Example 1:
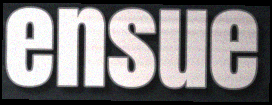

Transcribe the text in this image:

ensue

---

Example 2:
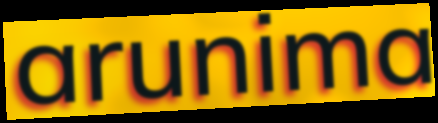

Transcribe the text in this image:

arunima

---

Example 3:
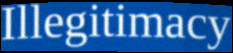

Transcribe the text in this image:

Illegitimacy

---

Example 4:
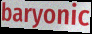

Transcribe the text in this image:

baryonic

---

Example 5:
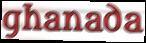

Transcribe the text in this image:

ghanada